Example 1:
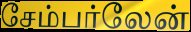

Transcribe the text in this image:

சேம்பர்லேன்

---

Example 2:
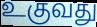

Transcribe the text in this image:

உகுவது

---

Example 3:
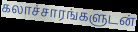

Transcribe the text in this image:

கலாச்சாரங்களுடன்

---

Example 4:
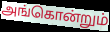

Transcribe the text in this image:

அங்கொன்றும்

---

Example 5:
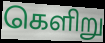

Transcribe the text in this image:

கெளிறு